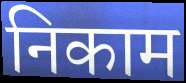
निकाम